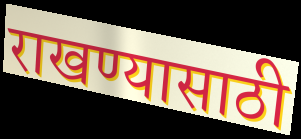
राखण्यासाठी